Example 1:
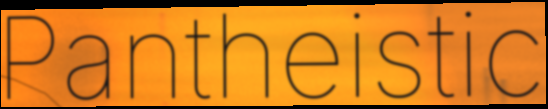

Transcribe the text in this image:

Pantheistic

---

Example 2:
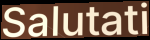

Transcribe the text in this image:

Salutati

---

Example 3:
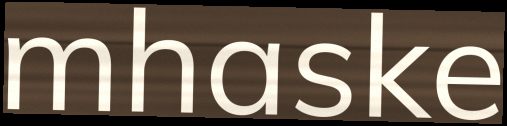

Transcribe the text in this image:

mhaske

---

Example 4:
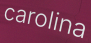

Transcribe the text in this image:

carolina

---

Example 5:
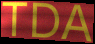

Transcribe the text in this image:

TDA